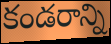
కండరాన్ని